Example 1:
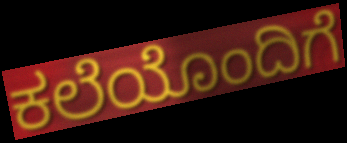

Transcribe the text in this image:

ಕಲೆಯೊಂದಿಗೆ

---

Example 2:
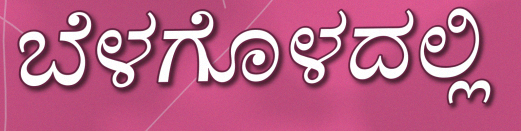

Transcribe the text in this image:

ಬೆಳಗೊಳದಲ್ಲಿ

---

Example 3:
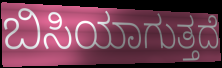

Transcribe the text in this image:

ಬಿಸಿಯಾಗುತ್ತದೆ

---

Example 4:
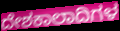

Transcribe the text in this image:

ದೇಶಕಾಲಾದಿಗಳ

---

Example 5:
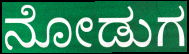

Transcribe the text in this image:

ನೋಡುಗ